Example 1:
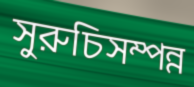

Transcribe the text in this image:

সুরুচিসম্পন্ন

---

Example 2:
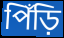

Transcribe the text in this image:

পিঁড়ি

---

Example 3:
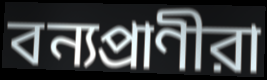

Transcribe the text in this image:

বন্যপ্রাণীরা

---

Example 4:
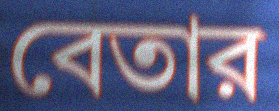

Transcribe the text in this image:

বেতার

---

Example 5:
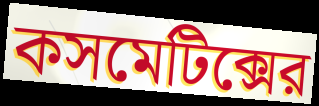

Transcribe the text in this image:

কসমেটিক্সের